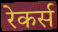
रेकर्स